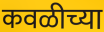
कवळीच्या